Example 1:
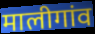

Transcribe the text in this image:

मालीगांव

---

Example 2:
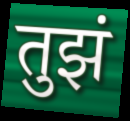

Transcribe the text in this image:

तुझं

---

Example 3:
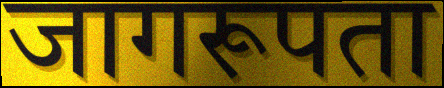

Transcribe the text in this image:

जागरूपता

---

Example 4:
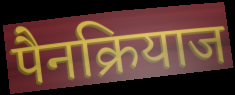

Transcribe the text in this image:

पैनक्रियाज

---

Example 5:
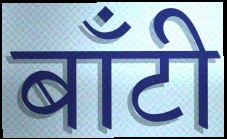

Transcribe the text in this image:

बाँटी